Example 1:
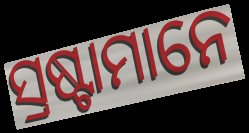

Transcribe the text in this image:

ସ୍ରଷ୍ଟାମାନେ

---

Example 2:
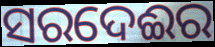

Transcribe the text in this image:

ସରଦେଈର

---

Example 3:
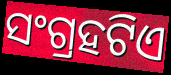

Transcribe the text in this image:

ସଂଗ୍ରହଟିଏ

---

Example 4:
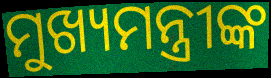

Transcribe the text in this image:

ମୁଖ୍ୟମନ୍ତ୍ରୀଙ୍କ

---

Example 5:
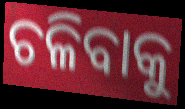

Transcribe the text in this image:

ଚଳିବାକୁ